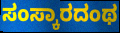
ಸಂಸ್ಕಾರದಂಥ